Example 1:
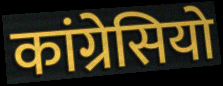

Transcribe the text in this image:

कांग्रेसियो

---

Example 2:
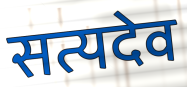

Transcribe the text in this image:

सत्यदेव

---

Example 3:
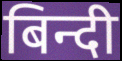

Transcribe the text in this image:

बिन्दी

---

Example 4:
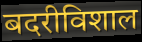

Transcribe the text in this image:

बदरीविशाल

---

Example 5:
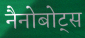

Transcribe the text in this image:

नैनोबोट्स